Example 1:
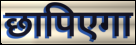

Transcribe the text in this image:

छापिएगा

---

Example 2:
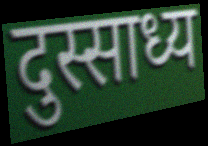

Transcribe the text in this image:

दुस्साध्य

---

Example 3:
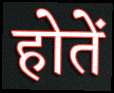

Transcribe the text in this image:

होतें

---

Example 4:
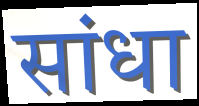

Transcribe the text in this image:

सांधा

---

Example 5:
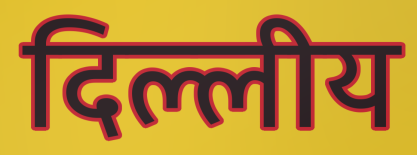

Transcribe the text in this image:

दिल्लीय